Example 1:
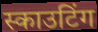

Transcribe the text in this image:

स्काउटिंग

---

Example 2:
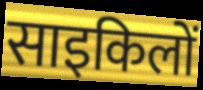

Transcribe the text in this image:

साइकिलों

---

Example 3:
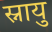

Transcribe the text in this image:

स्नायु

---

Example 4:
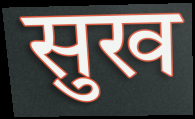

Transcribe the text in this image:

सुख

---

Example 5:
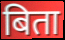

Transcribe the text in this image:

बिता